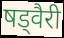
षड्वैरी